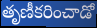
తృణీకరించాడో